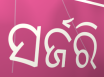
ସର୍ଜରି